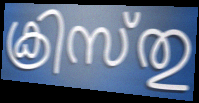
ക്രിസ്‌തു